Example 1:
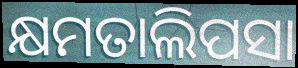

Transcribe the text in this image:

କ୍ଷମତାଲିପସା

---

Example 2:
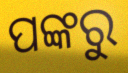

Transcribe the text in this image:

ପଙ୍କରୁ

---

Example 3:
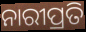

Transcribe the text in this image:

ନାରୀପ୍ରତି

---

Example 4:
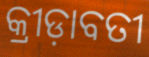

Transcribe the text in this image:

କ୍ରୀଡ଼ାବତୀ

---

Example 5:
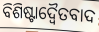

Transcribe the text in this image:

ବିଶିଷ୍ଟାଦ୍ୱୈତବାଦ